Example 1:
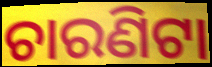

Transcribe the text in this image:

ଚାରଣିଟା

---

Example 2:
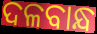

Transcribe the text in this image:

ଦଳବାନ୍ଧ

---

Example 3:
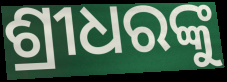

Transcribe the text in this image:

ଶ୍ରୀଧରଙ୍କୁ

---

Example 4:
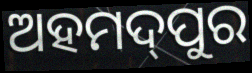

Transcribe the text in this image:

ଅହମଦ୍‌ପୁର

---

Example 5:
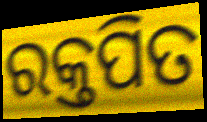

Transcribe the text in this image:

ରକ୍ତପିତ